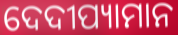
ଦେଦୀପ୍ୟାମାନ